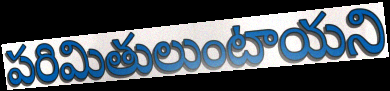
పరిమితులుంటాయని